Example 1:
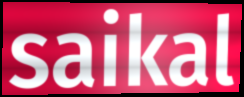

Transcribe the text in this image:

saikal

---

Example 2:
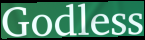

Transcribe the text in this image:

Godless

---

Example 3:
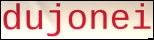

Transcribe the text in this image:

dujonei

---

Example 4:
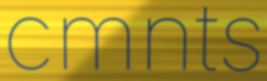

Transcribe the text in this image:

cmnts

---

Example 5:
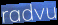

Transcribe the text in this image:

radvu